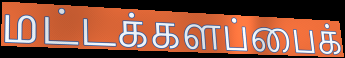
மட்டக்களப்பைக்